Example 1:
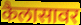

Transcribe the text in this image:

कैलासावर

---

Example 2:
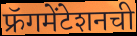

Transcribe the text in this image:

फ्रॅगमेंटेशनची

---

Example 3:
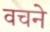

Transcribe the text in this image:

वचने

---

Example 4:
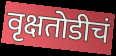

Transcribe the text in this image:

वृक्षतोडीचं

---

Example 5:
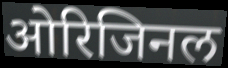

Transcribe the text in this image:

ओरिजिनल